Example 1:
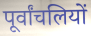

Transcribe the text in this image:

पूर्वांचलियों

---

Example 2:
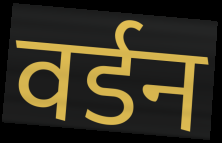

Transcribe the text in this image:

वर्डन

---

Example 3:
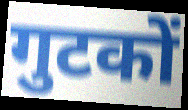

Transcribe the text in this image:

गुटकों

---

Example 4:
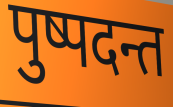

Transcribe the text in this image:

पुष्पदन्त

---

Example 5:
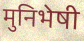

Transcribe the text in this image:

मुनिभेषी